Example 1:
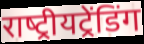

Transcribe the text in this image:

राष्ट्रीयट्रेंडिंग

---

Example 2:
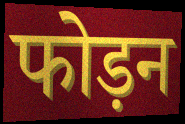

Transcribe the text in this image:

फोड़न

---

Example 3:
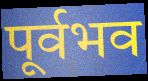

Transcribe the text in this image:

पूर्वभव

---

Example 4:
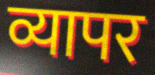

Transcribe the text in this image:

व्यापर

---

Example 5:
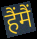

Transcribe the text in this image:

हैंमैं